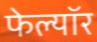
फेल्यॉर